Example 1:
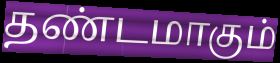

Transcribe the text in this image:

தண்டமாகும்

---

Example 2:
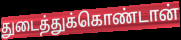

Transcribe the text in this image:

துடைத்துக்கொண்டான்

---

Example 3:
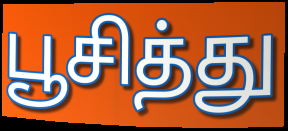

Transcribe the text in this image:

பூசித்து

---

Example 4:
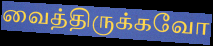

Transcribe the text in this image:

வைத்திருக்கவோ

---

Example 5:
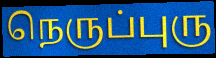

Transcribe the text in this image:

நெருப்புரு